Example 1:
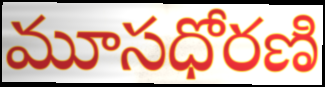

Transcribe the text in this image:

మూసధోరణి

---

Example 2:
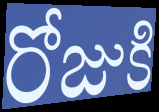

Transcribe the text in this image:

రోజుకి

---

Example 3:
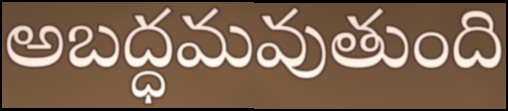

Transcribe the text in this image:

అబద్ధమవుతుంది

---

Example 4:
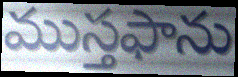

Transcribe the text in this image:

ముస్తఫాను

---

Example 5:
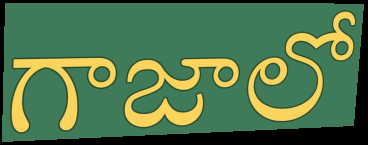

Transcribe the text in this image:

గాజాలో